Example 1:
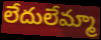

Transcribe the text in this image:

లేదులేమ్మా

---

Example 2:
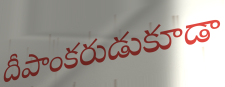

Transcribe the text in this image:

దీపాంకరుడుకూడా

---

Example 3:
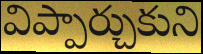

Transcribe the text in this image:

విప్పార్చుకుని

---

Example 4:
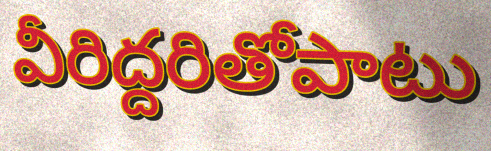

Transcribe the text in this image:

వీరిద్దరితోపాటు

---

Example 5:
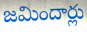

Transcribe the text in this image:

జమిందార్లు